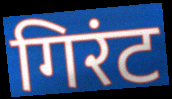
गिरंट